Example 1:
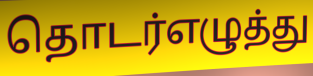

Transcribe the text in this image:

தொடர்எழுத்து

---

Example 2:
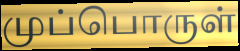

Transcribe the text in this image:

முப்பொருள்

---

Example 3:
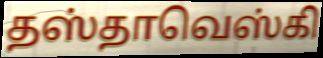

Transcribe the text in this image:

தஸ்தாவெஸ்கி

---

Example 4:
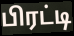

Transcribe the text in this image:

பிரட்டி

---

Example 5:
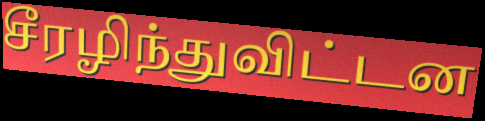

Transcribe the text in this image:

சீரழிந்துவிட்டன